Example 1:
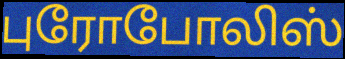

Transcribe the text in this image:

புரோபோலிஸ்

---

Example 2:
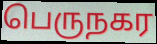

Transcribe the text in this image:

பெருநகர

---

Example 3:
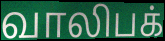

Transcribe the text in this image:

வாலிபக்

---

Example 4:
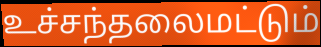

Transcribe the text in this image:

உச்சந்தலைமட்டும்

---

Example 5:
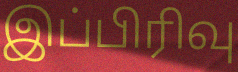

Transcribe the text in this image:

இப்பிரிவு